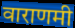
वाराणमी